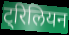
ट्रिलियन